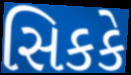
સિકકે